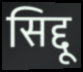
सिद्दू